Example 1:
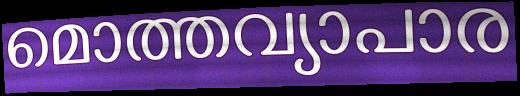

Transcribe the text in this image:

മൊത്തവ്യാപാര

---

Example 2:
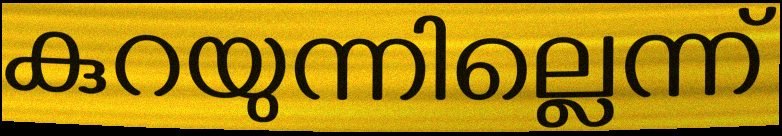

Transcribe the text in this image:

കുറയുന്നില്ലെന്ന്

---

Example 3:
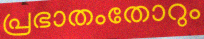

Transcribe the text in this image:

പ്രഭാതംതോറും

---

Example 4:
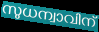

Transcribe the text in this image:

സുധന്വാവിന്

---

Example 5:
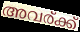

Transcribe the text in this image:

അവര്ക്ക്